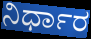
ನಿರ್ಧಾರ